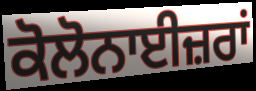
ਕੋਲੋਨਾਈਜ਼ਰਾਂ